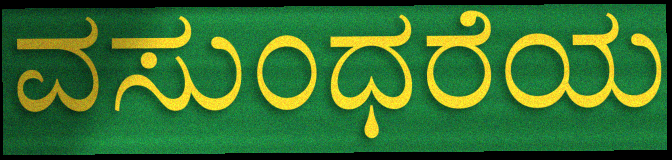
ವಸುಂಧರೆಯ